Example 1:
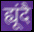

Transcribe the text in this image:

ह्यूंदै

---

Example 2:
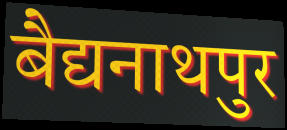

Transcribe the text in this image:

बैद्यनाथपुर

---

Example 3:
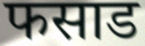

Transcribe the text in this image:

फसाड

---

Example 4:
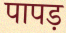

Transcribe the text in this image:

पापड़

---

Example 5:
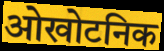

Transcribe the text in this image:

ओखोटनिक